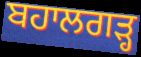
ਬਹਾਲਗੜ੍ਹ